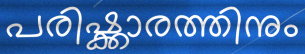
പരിഷ്ക്കാരത്തിനും